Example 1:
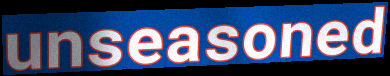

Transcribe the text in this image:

unseasoned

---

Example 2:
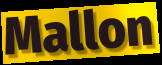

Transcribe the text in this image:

Mallon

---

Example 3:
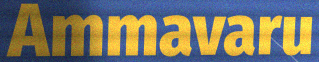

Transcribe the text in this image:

Ammavaru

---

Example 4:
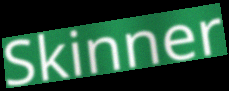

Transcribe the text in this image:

Skinner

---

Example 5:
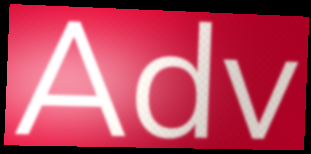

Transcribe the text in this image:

Adv